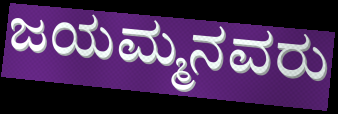
ಜಯಮ್ಮನವರು